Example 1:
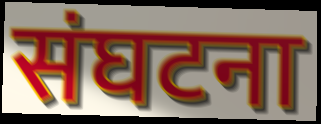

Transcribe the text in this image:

संघटना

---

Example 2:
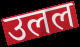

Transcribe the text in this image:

उलल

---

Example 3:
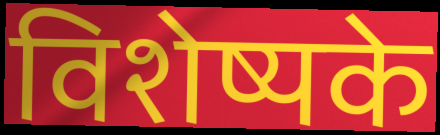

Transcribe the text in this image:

विशेष्यके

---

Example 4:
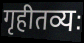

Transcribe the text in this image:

गृहीतव्यः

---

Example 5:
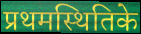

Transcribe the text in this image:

प्रथमस्थितिके